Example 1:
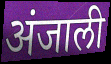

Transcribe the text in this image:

अंजाली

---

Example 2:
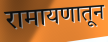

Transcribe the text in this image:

रामायणातून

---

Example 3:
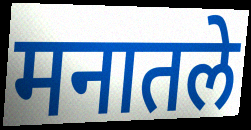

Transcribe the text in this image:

मनातले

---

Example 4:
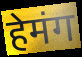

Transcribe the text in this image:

हेमंग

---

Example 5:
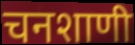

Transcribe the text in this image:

चनशाणी